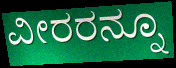
ವೀರರನ್ನೂ